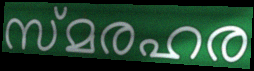
സ്മരഹര